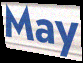
May